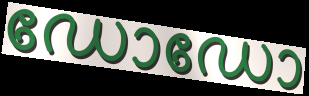
ഡോഡോ